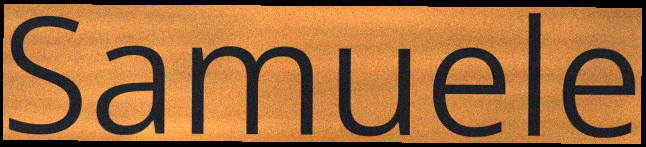
Samuele